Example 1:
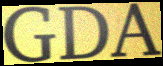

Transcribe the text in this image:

GDA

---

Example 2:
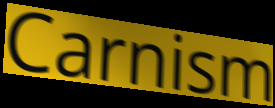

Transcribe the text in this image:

Carnism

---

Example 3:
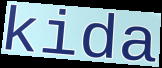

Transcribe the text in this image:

kida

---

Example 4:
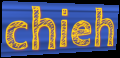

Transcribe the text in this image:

chieh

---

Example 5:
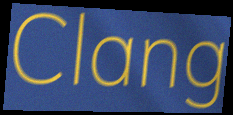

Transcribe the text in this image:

Clang